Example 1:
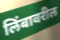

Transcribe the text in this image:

लिंबावरील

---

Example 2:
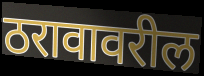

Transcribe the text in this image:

ठरावावरील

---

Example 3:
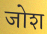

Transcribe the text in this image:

जोश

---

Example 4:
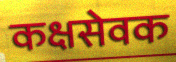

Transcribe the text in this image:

कक्षसेवक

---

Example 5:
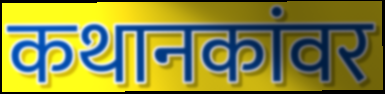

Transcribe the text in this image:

कथानकांवर